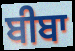
ਬੀਬਾ